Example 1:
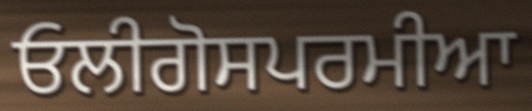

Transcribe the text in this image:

ਓਲੀਗੋਸਪਰਮੀਆ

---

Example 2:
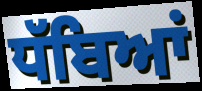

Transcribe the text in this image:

ਧੱਬਿਆਂ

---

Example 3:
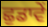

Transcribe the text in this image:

ਛੁਡਾਵੇਂ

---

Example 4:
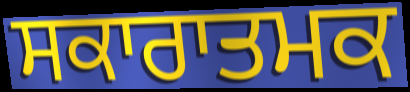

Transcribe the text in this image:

ਸਕਾਰਾਤਮਕ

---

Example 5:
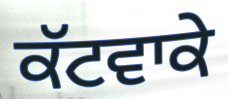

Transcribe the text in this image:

ਕੱਟਵਾਕੇ